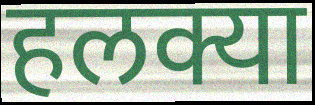
हलक्या